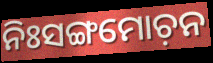
ନିଃସଙ୍ଗମୋଚ଼ନ